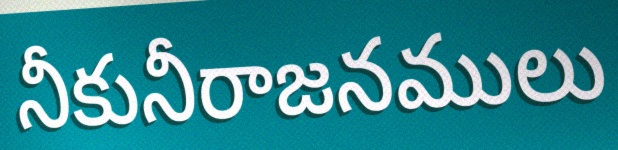
నీకునీరాజనములు